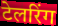
टेलरिंग